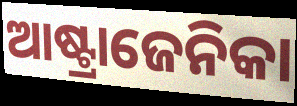
ଆଷ୍ଟ୍ରାଜେନିକା